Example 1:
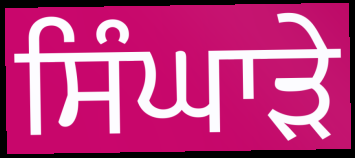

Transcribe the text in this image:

ਸਿੰਘਾੜੇ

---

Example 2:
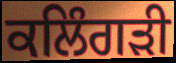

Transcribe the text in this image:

ਕਲਿੰਗੜੀ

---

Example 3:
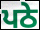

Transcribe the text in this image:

ਪਠੇ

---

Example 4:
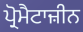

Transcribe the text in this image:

ਪ੍ਰੋਮੈਟਾਜ਼ੀਨ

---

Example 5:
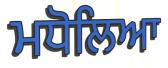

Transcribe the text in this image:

ਮਧੋਲਿਆ